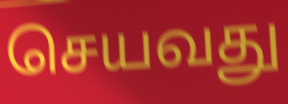
செயவது